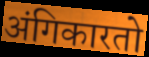
अंगिकारतो